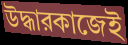
উদ্ধারকাজেই